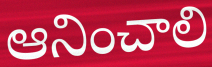
ఆనించాలి